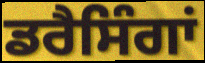
ਡਰੈਸਿੰਗਾਂ